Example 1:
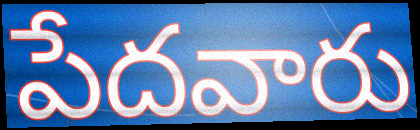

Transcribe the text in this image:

పేదవారు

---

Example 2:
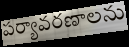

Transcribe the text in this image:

పర్యావరణాలను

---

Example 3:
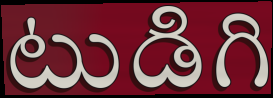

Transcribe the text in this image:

టుడిగి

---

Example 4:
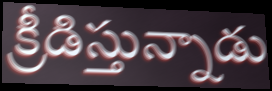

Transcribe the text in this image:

క్రీడిస్తున్నాడు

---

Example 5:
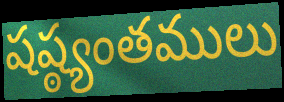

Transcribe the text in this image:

షష్ఠ్యంతములు